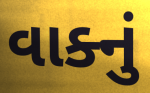
વાક્નું